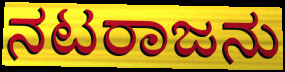
ನಟರಾಜನು